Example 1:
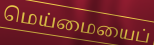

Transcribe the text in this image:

மெய்மையைப்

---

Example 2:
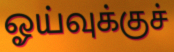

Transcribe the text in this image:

ஓய்வுக்குச்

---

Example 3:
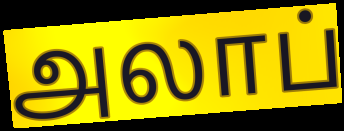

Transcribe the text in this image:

அலாப்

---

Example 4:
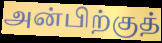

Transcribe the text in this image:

அன்பிற்குத்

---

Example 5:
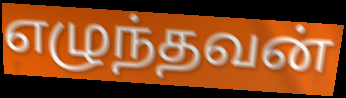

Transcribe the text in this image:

எழுந்தவன்